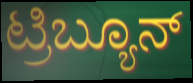
ಟ್ರಿಬ್ಯೂನ್